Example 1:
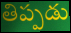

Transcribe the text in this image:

తిప్పడు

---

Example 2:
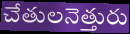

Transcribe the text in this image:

చేతులనెత్తురు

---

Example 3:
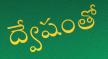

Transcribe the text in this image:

ద్వేషంతో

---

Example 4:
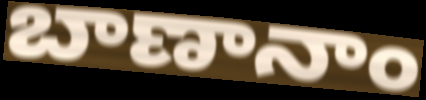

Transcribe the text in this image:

బాణానాం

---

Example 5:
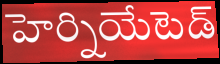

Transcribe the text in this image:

హెర్నియేటెడ్